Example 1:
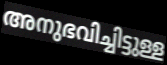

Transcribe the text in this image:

അനുഭവിച്ചിട്ടുള്ള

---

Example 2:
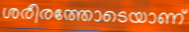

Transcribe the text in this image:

ശരീരത്തോടെയാണ്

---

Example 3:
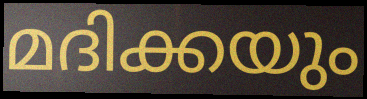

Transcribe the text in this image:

മദിക്കയും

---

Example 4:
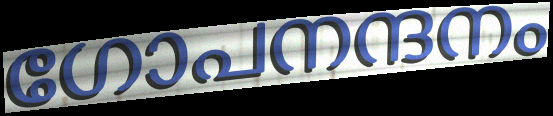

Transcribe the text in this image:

ഗോപനന്ദനം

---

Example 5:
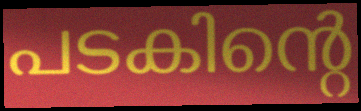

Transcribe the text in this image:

പടകിന്റെ